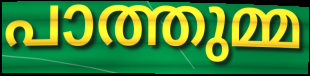
പാത്തുമ്മ